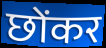
छोंकर